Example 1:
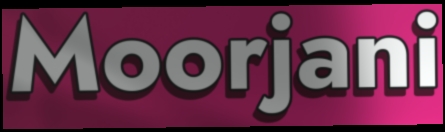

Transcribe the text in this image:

Moorjani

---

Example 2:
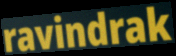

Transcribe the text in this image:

ravindrak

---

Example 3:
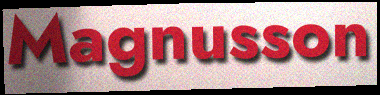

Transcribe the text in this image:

Magnusson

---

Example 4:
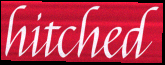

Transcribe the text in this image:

hitched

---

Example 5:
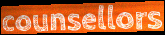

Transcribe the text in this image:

counsellors